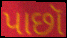
પાછૉ